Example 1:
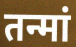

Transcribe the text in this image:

तन्मां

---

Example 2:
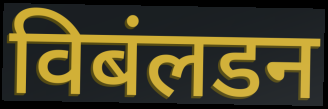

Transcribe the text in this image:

विबंलडन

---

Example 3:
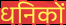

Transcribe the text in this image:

धनिकों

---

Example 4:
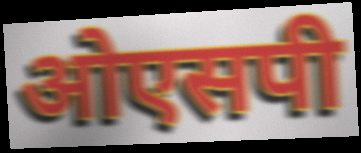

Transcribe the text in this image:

ओएसपी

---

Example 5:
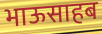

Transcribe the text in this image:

भाऊसाहब